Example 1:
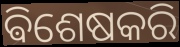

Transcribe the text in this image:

ଵିଶେଷକରି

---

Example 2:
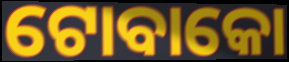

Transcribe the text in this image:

ଟୋବାକୋ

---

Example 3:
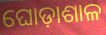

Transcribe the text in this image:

ଘୋଡ଼ାଶାଳ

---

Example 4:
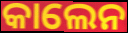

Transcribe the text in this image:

କାଲେନ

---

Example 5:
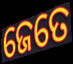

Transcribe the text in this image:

ଜେତେ